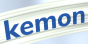
kemon